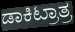
ಡಾಕಿಟ್ರಾತ್ರ